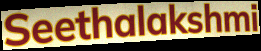
Seethalakshmi